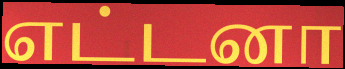
எட்டனா